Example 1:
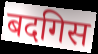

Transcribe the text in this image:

बदगिस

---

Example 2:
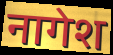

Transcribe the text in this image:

नागेश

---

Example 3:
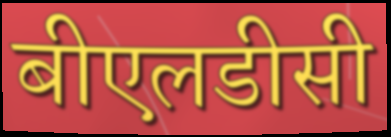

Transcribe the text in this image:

बीएलडीसी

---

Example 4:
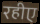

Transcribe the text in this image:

रहीए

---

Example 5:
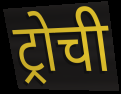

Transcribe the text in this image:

ट्रोची